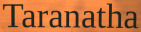
Taranatha